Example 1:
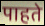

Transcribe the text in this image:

पाहते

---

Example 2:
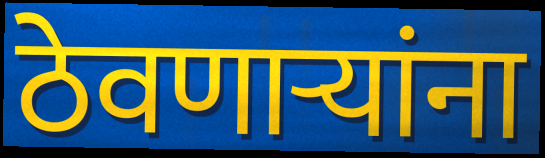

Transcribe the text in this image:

ठेवणार्‍यांना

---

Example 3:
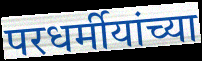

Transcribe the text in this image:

परधर्मीयांच्या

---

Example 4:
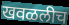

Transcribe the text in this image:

खवळलीच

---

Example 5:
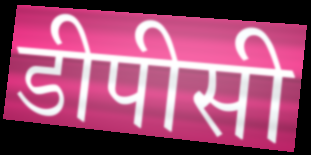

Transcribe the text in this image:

डीपीसी